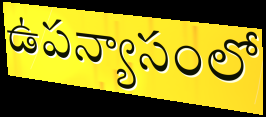
ఉపన్యాసంలో